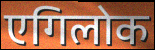
एगिलोक